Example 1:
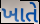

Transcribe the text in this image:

ખાતે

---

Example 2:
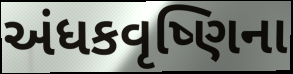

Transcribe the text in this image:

અંધકવૃષ્ણિના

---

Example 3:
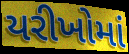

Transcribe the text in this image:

યરીખોમાં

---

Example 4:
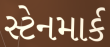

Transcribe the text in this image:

સ્ટેનમાર્ક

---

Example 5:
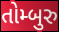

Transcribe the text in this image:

તોમ્બુરુ